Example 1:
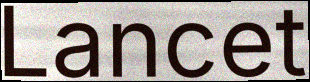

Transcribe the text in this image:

Lancet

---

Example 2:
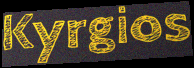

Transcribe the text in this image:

Kyrgios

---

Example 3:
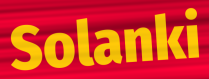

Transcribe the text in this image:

Solanki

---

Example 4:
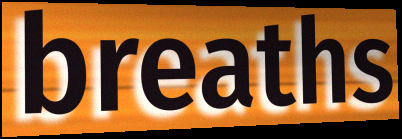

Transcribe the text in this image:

breaths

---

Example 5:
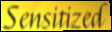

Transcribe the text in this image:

Sensitized